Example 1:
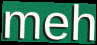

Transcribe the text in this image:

meh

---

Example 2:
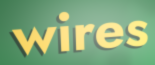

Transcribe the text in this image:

wires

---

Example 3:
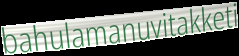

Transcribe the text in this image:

bahulamanuvitakketi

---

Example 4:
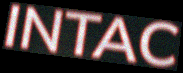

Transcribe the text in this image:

INTAC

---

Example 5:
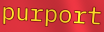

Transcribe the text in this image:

purport